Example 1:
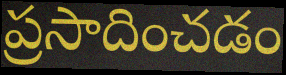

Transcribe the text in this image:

ప్రసాదించడం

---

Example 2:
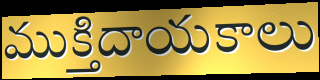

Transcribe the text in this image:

ముక్తిదాయకాలు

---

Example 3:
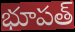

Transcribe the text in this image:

భూపత్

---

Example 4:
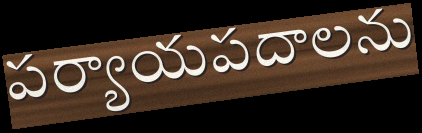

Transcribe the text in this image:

పర్యాయపదాలను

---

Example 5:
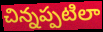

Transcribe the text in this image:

చిన్నప్పటిలా